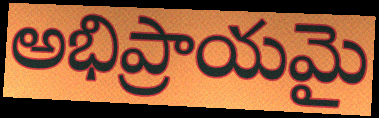
అభిప్రాయమై